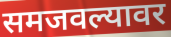
समजवल्यावर